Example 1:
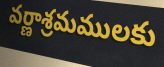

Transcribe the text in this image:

వర్ణాశ్రమములకు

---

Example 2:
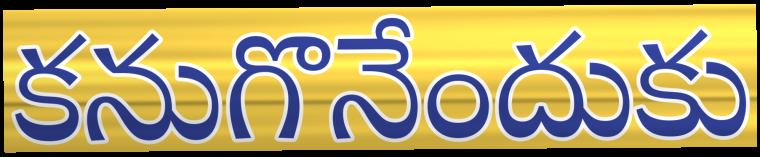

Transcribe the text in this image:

కనుగొనేందుకు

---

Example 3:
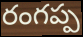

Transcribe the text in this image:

రంగప్ప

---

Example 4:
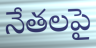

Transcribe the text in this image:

నేతలపై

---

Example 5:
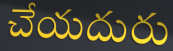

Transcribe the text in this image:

చేయదురు